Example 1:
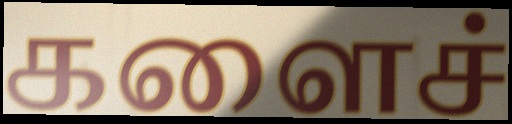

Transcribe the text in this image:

களைச்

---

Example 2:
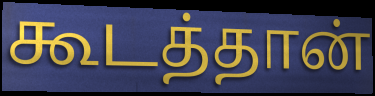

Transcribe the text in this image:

கூடத்தான்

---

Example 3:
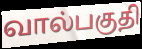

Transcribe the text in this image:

வால்பகுதி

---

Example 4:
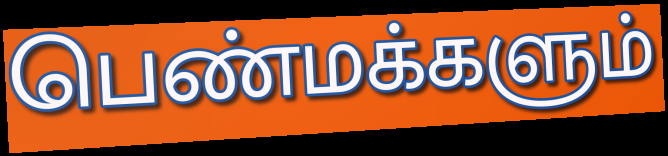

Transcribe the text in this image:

பெண்மக்களும்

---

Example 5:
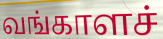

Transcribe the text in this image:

வங்காளச்